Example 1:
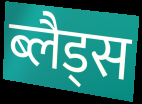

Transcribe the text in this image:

ब्लैड्स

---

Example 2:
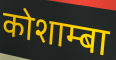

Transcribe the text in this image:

कोशाम्बा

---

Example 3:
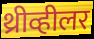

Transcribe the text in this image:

थ्रीव्हीलर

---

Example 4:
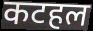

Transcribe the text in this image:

कटहल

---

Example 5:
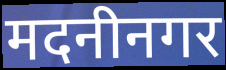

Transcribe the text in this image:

मदनीनगर